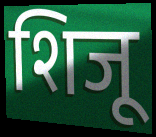
शिजू